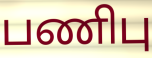
பணிபு